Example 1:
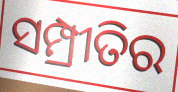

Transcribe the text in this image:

ସମ୍ପ୍ରୀତିର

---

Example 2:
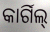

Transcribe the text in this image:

କାର୍ଗିଲ୍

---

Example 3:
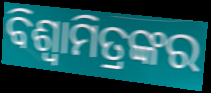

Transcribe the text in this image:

ବିଶ୍ୱାମିତ୍ରଙ୍କର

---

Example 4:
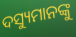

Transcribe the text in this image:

ଦସ୍ୟୁମାନଙ୍କୁ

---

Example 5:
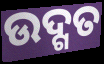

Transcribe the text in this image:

ଉଦ୍ଗତ